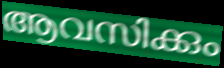
ആവസിക്കും